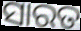
ସାରତ